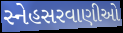
સ્નેહસરવાણીઓ